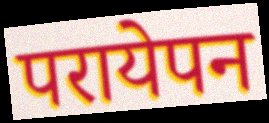
परायेपन